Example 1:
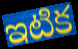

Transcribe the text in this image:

ఇటిక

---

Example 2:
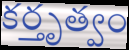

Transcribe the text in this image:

కర్తృత్వం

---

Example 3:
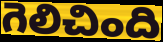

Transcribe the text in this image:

గెలిచింది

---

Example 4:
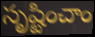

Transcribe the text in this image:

సృష్టించాం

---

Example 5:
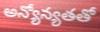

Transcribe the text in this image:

అన్యోన్యతతో